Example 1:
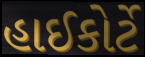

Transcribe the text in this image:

હાઈકોર્ટે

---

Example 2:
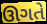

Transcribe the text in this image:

ઊગતે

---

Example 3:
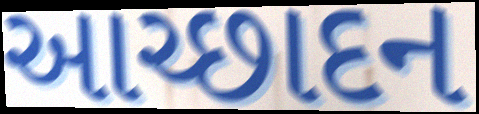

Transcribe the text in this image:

આચ્છાદન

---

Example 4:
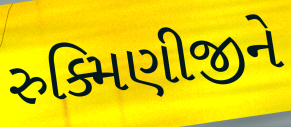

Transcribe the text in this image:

રુક્મિણીજીને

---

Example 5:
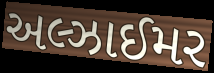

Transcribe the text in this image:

અલ્ઝાઈમર